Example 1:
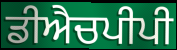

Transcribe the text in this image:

ਡੀਐਚਪੀਪੀ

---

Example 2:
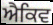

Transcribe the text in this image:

ਐਕਿਵ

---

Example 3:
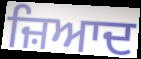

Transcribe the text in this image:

ਜ਼ਿਆਦ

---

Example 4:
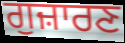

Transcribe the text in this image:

ਗੁਜ਼ਾਰਣ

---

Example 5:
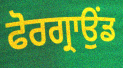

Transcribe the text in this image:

ਫੋਰਗ੍ਰਾਉਂਡ